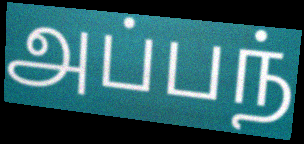
அப்பந்